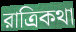
রাত্রিকথা